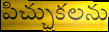
పిచ్చుకలను